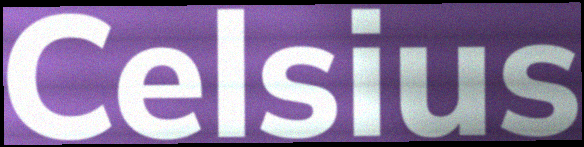
Celsius